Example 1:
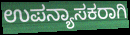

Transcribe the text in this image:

ಉಪನ್ಯಾಸಕರಾಗಿ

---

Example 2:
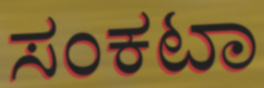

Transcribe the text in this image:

ಸಂಕಟಾ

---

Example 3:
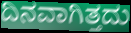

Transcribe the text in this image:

ದಿನವಾಗಿತ್ತದು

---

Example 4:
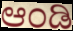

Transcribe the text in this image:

ಆಂಡಿ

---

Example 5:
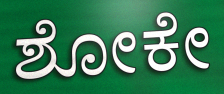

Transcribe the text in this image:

ಶೋಕೇ